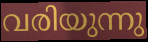
വരിയുന്നു